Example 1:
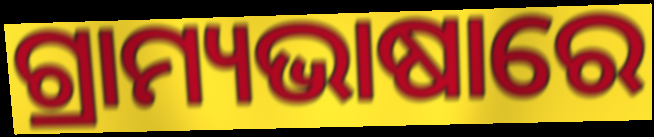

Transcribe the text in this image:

ଗ୍ରାମ୍ୟଭାଷାରେ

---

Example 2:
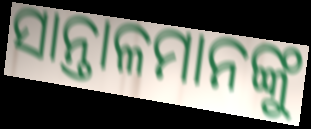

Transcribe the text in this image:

ସାନ୍ତାଳମାନଙ୍କୁ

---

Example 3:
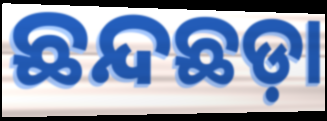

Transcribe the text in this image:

ଛନ୍ଦଛଡ଼ା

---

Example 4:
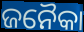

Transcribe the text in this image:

ଜନୈକା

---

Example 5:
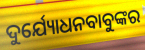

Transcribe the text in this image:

ଦୁର୍ଯ୍ୟୋଧନବାବୁଙ୍କର